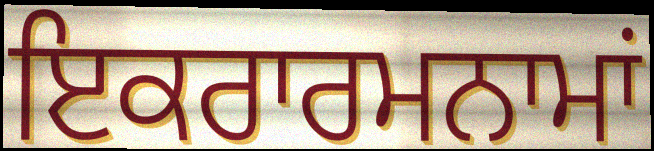
ਇਕਰਾਰਮਨਾਮਾਂ